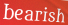
bearish